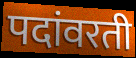
पदांवरती